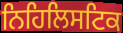
ਨਿਹਿਲਿਸਟਿਕ